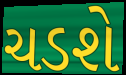
ચડશે